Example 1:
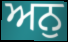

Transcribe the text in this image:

ਅਨੁ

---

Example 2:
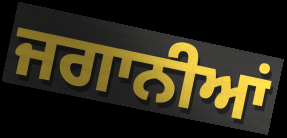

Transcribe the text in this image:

ਜਗਾਨੀਆਂ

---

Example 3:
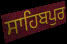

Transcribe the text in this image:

ਸਾਹਿਬਪੁਰ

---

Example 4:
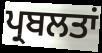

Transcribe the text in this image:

ਪ੍ਰਬਲਤਾਂ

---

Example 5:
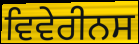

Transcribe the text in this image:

ਵਿਵੇਰੀਨਸ